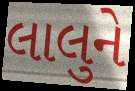
લાલુને